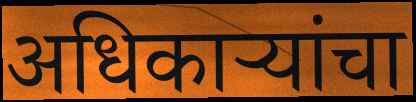
अधिकाऱ्यांचा